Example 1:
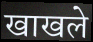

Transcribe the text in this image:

खाखले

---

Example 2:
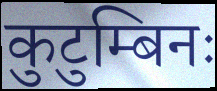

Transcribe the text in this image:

कुटुम्बिनः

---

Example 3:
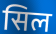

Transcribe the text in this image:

सिल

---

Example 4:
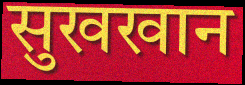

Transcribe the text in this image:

सुखखान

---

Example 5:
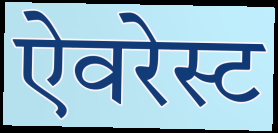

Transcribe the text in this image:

ऐवरेस्ट